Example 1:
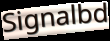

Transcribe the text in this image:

Signalbd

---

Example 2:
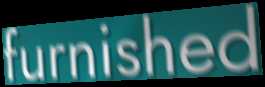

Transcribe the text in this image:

furnished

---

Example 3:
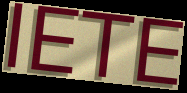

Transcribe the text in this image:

IETE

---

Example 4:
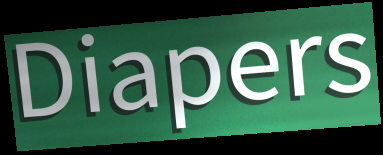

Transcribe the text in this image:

Diapers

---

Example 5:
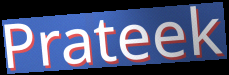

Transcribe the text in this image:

Prateek